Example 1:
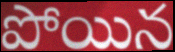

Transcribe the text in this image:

పోయిన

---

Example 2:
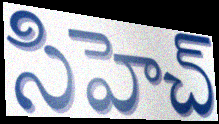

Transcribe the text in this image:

సిహెచ్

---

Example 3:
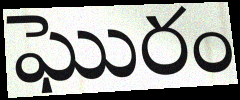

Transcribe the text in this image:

ఘొరం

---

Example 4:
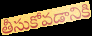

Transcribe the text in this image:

తీసుకోవడానికి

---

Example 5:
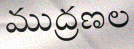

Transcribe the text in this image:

ముద్రణల